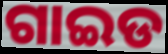
ଗାଇଡ